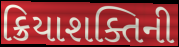
ક્રિયાશક્તિની